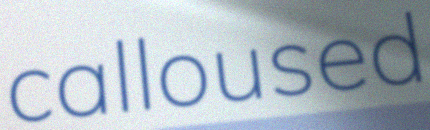
calloused